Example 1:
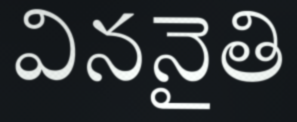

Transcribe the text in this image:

విననైతి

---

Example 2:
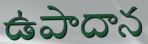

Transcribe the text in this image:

ఉపాదాన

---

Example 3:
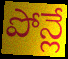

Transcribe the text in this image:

పోన్లే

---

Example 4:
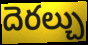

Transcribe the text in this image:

దెరల్చు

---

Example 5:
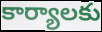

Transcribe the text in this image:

కార్యాలకు